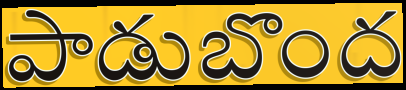
పాడుబొంద